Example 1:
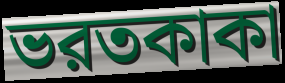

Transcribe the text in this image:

ভরতকাকা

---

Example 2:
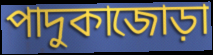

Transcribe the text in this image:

পাদুকাজোড়া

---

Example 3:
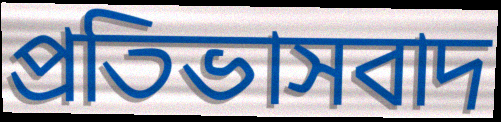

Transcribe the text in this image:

প্রতিভাসবাদ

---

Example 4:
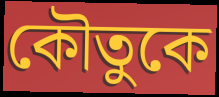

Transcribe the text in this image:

কৌতুকে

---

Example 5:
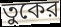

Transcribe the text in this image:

তুকের